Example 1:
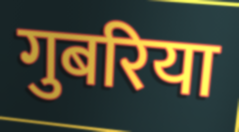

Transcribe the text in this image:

गुबरिया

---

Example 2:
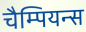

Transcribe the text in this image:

चैम्पियन्स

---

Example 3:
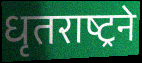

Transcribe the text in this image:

धृतराष्ट्रने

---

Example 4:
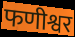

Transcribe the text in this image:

फणीश्वर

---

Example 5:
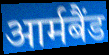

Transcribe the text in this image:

आर्मबैंड